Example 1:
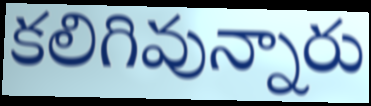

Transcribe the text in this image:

కలిగివున్నారు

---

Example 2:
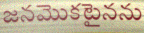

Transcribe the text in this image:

జనమొకటైనను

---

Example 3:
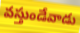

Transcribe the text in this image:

వస్తుండేవాడు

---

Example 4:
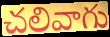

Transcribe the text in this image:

చలివాగు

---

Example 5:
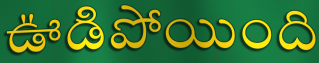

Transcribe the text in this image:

ఊడిపోయింది